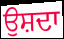
ਉਸ਼ਦਾ